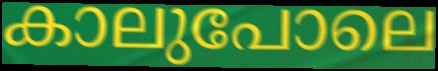
കാലുപോലെ